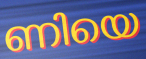
ണിയെ